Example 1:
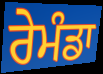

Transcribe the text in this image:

ਰੇਮੰਡਾ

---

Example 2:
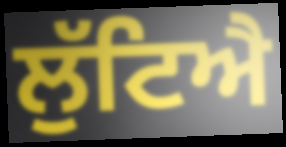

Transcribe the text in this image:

ਲੁੱਟਿਐ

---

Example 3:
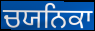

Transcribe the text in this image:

ਚਯਨਿਕਾ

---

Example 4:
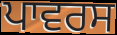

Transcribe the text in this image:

ਪਾਵਰਸ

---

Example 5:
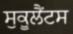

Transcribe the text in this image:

ਸੁਕੂਲੈਂਟਸ